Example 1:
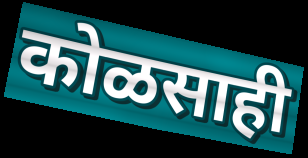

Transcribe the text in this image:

कोळसाही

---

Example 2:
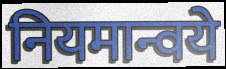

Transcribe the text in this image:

नियमान्वये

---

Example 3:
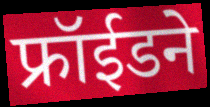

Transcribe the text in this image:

फ्रॉईडने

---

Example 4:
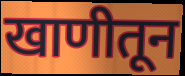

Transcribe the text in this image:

खाणीतून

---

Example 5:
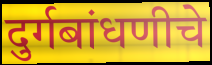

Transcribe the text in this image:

दुर्गबांधणीचे